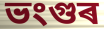
ভংগুৰ